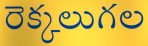
రెక్కలుగల